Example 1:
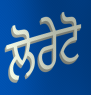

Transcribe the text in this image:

ਲੋਰੇਟੋ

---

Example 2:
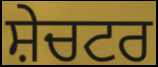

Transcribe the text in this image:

ਸ਼ੇਚਟਰ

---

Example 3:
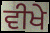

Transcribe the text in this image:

ਵੀਖੇ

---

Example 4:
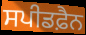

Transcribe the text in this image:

ਸਪੀਡਫ਼ੈਨ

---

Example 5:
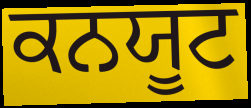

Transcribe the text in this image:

ਕਨਯੂਟ